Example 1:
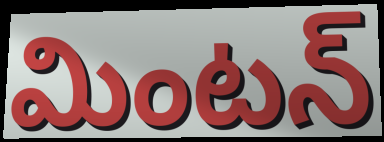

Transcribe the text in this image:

మింటన్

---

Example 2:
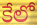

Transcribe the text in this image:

కేలో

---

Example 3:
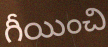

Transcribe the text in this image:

గీయించి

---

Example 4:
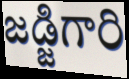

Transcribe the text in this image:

జడ్జిగారి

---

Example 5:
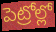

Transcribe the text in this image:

పెట్రోల్లో